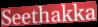
Seethakka